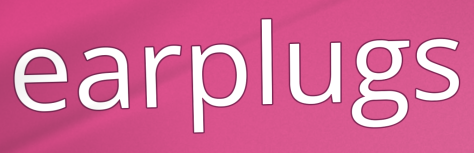
earplugs